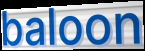
baloon